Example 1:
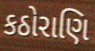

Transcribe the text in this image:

કઠોરાણિ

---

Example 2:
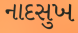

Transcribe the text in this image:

નાદસુખ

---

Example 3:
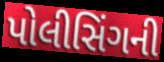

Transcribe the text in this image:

પોલીસિંગની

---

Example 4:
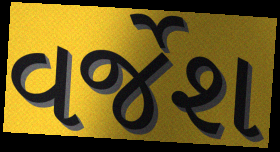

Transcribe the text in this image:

વર્જેશ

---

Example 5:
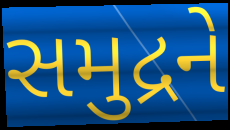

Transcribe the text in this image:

સમુદ્રને